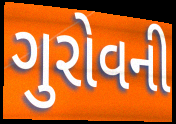
ગુરોવની